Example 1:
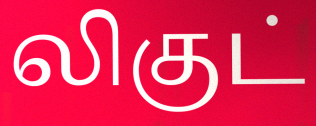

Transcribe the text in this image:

லிகுட்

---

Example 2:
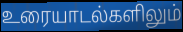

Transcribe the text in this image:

உரையாடல்களிலும்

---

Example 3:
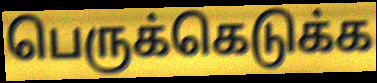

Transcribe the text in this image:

பெருக்கெடுக்க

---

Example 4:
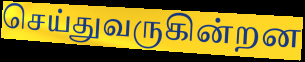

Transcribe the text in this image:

செய்துவருகின்றன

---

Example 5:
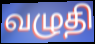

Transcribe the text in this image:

வழுதி